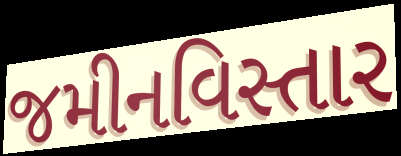
જમીનવિસ્તાર